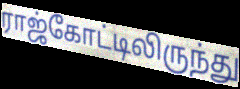
ராஜ்கோட்டிலிருந்து